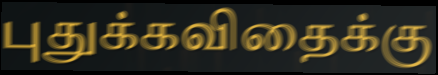
புதுக்கவிதைக்கு